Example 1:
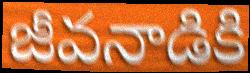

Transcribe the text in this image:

జీవనాడికి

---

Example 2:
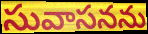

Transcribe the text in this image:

సువాసనను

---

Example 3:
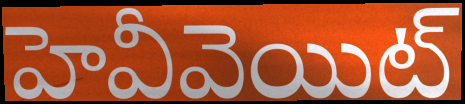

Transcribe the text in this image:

హెవీవెయిట్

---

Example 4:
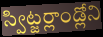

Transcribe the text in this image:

స్విట్జర్లాండ్లోని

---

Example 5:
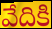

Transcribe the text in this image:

వేదికి